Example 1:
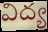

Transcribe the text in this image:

విద్య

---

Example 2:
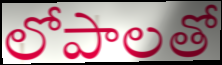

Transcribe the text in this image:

లోపాలతో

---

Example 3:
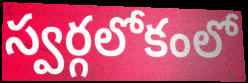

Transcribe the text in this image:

స్వర్గలోకంలో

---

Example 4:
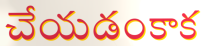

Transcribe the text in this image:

చేయడంకాక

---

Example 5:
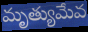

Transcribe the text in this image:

మృత్యుమేవ